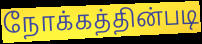
நோக்கத்தின்படி